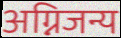
अग्निजन्य